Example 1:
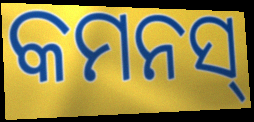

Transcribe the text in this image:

କମନସ୍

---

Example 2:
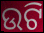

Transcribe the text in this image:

ଉଟି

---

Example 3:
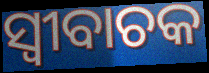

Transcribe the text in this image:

ସ୍ବୀବାଚକ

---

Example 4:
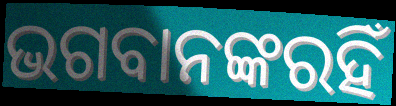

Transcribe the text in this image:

ଭଗବାନଙ୍କରହିଁ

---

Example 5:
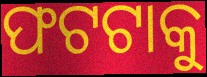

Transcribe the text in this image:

ଫଟଟାକୁ